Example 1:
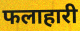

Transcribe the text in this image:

फलाहारी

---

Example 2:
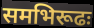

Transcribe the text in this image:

समभिरूढः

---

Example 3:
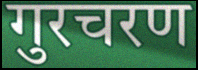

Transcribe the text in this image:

गुरचरण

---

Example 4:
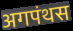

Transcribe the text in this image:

अगपंथस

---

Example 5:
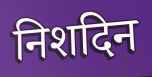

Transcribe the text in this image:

निशदिन